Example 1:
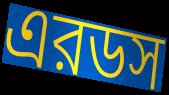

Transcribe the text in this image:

এরডস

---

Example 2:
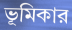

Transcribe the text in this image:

ভূমিকার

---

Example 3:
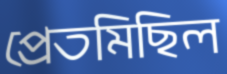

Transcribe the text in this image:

প্রেতমিছিল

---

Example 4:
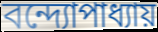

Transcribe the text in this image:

বন্দ্যোপাধ্যায়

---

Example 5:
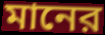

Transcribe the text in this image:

মানের